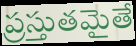
ప్రస్తుతమైతే